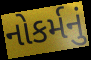
નોકર્મનું